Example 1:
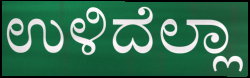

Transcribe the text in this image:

ಉಳಿದೆಲ್ಲಾ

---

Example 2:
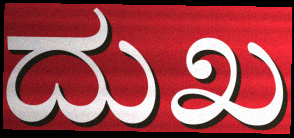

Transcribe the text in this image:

ದುಖ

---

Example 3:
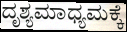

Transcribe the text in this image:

ದೃಶ್ಯಮಾಧ್ಯಮಕ್ಕೆ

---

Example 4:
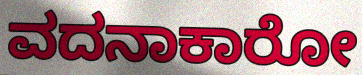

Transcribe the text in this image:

ವದನಾಕಾರೋ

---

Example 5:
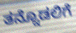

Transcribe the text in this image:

ತನ್ನೊಡಲಿಗೆ